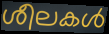
ശീലകൾ